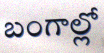
బంగాల్లో